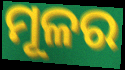
ମୂଳର